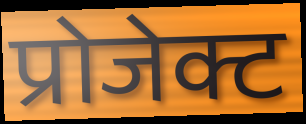
प्रोजेक्ट